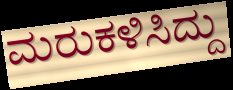
ಮರುಕಳಿಸಿದ್ದು